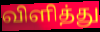
விளித்து